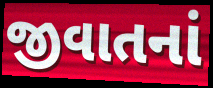
જીવાતનાં